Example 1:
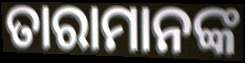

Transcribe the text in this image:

ତାରାମାନଙ୍କ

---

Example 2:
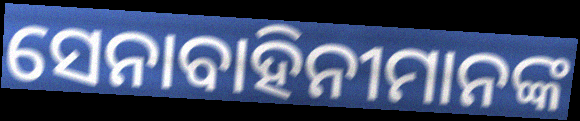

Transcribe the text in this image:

ସେନାବାହିନୀମାନଙ୍କ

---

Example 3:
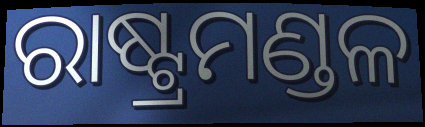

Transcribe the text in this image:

ରାଷ୍ଟ୍ରମଣ୍ଡଳ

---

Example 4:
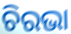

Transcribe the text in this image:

ଚିରଭା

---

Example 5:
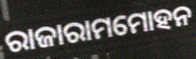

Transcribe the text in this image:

ରାଜାରାମମୋହନ